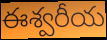
ఈశ్వరీయ